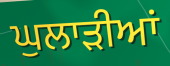
ਘੁਲਾੜੀਆਂ